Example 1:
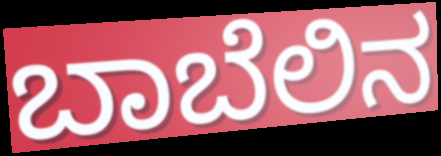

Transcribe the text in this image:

ಬಾಬೆಲಿನ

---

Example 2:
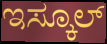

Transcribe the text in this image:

ಇಸ್ಕೂಲ್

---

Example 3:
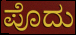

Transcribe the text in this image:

ಪೊದು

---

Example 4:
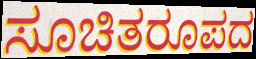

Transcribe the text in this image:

ಸೂಚಿತರೂಪದ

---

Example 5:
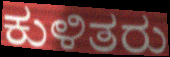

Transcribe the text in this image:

ಕುಳಿತರು